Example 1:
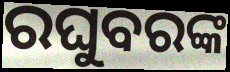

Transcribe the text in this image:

ରଘୁବରଙ୍କ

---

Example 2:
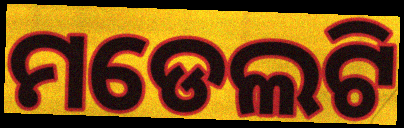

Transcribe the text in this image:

ମଡେଲଟି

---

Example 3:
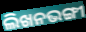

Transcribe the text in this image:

ଲିଖନଭଙ୍ଗୀ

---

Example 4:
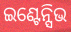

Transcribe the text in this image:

ଇଣ୍ଟେନ୍ସିଭ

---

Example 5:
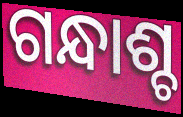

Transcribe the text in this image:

ଗନ୍ଧାଶ୍ଚ